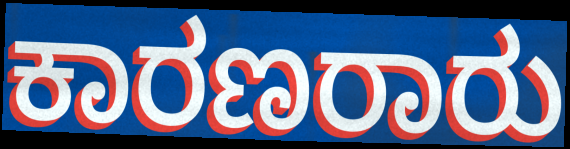
ಕಾರಣರಾರು